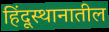
हिंदूस्थानातील